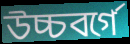
উচ্চবর্গে